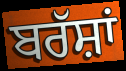
ਬਰੱਸ਼ਾਂ